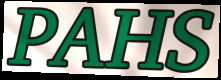
PAHS